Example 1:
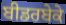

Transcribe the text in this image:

ਬੀਡਰਬੇਕੇ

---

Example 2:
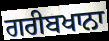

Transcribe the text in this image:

ਗਰੀਬਖਾਨਾ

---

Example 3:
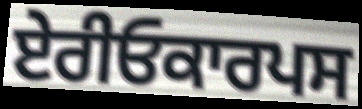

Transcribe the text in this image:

ਏਰੀਓਕਾਰਪਸ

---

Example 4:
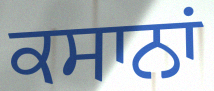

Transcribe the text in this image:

ਕਸਾਨਾਂ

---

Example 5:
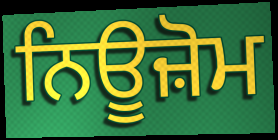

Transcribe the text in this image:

ਨਿਊਜ਼ੋਮ